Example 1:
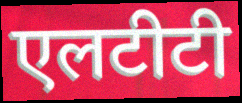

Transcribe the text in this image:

एलटीटी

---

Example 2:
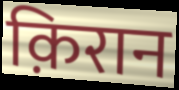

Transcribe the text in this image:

क़िरान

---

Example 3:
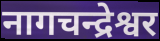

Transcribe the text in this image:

नागचन्द्रेश्वर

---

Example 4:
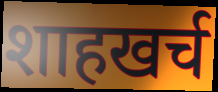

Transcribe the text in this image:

शाहखर्च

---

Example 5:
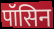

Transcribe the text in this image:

पॉसिन